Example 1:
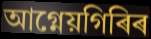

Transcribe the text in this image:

আগ্নেয়গিৰিৰ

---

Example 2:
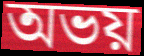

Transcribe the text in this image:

অভয়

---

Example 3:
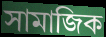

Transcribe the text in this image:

সামাজিক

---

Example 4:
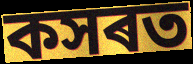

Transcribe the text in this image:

কসৰত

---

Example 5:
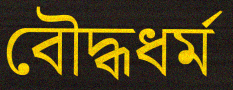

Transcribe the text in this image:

বৌদ্ধধৰ্ম